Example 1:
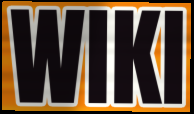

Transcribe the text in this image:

WIKI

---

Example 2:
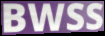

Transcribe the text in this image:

BWSS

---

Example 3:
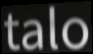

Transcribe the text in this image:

talo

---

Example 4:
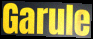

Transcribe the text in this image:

Garule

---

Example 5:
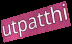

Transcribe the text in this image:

utpatthi